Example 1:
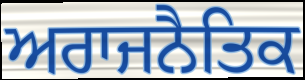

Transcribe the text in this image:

ਅਰਾਜਨੈਤਿਕ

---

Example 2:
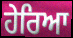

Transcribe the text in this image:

ਹੇਰਿਆ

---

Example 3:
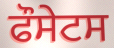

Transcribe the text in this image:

ਫੌਸੇਟਸ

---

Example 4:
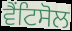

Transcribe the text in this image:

ਵੈਂਟਿਸੋਲ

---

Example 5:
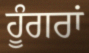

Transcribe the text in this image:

ਹੂੰਗਰਾਂ